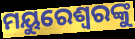
ମୟୁରେଶ୍ବରଙ୍କୁ